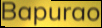
Bapurao